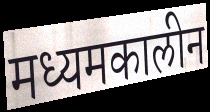
मध्यमकालीन